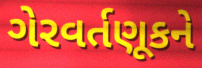
ગેરવર્તણૂકને